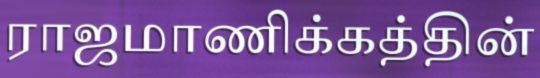
ராஜமாணிக்கத்தின்